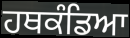
ਹਥਕੰਡਿਆ